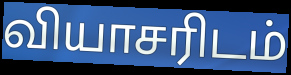
வியாசரிடம்